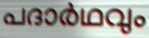
പദാർഥവും